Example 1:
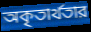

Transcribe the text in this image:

অকৃতার্থতার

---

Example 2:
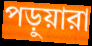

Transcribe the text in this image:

পড়ুয়ারা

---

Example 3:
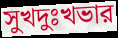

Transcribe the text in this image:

সুখদুঃখভার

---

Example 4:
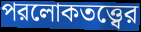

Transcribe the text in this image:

পরলোকতত্ত্বের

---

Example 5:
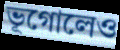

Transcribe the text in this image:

ভূগোলেও